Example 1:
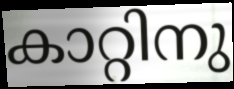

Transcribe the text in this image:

കാറ്റിനു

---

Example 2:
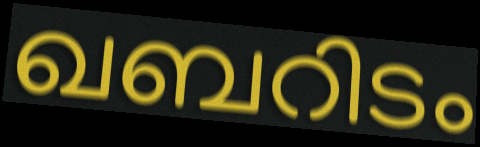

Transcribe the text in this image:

ഖബറിടം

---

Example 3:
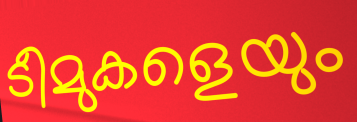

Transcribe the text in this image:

ടീമുകളെയും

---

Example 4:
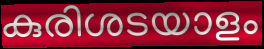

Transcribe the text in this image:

കുരിശടയാളം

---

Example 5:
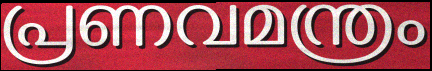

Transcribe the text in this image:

പ്രണവമന്ത്രം